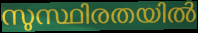
സുസ്ഥിരതയിൽ